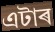
এটাৰ